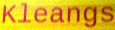
Kleangs